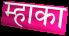
म्हाका